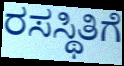
ರಸಸ್ಥಿತಿಗೆ